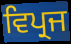
ਵਿਪ੍ਰਜ